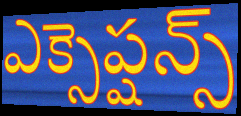
ఎక్సెప్షన్స్